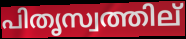
പിതൃസ്വത്തില്